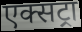
एक्सट्रा